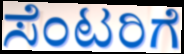
ಸೆಂಟರಿಗೆ